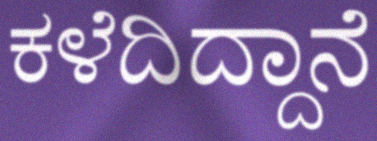
ಕಳೆದಿದ್ದಾನೆ